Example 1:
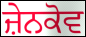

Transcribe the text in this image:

ਜ਼ੇਨਕੋਵ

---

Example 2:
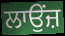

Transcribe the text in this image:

ਲਾਉਂਜ਼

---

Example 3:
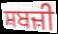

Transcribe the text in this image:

ਸ਼ਬਜ਼ੀ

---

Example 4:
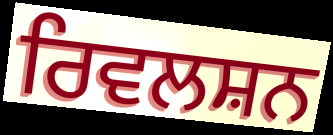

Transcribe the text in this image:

ਰਿਵਲਸ਼ਨ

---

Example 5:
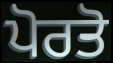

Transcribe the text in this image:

ਪੋਰਤੋ